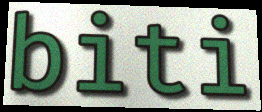
biti